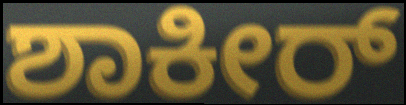
ಶಾಕೀರ್